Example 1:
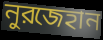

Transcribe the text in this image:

নুরজেহান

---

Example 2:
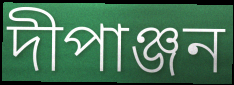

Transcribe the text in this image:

দীপাঞ্জন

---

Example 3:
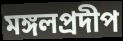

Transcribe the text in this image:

মঙ্গলপ্রদীপ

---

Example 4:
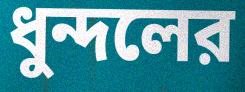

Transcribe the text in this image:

ধুন্দলের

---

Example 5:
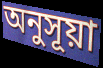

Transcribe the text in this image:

অনুসূয়া